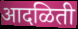
आदळिती